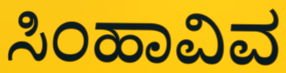
ಸಿಂಹಾವಿವ